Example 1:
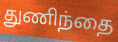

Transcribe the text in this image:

துணிந்தை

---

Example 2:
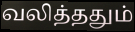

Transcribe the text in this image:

வலித்ததும்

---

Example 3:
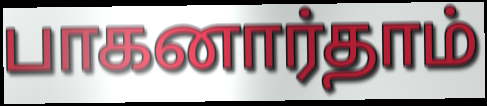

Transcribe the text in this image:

பாகனார்தாம்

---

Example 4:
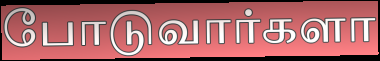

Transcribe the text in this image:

போடுவார்களா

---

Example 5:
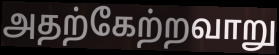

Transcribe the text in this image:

அதற்கேற்றவாறு